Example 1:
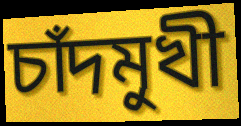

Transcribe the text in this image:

চাঁদমুখী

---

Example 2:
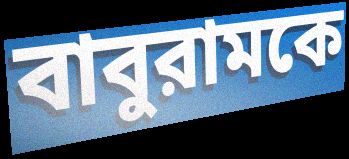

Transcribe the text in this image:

বাবুরামকে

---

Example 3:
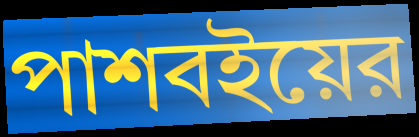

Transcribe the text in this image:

পাশবইয়ের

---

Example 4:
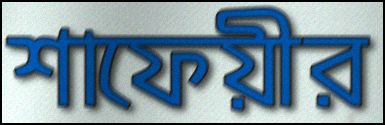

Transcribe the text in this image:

শাফেয়ীর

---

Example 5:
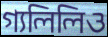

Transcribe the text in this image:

গ্যলিলিও